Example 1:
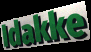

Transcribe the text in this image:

Idakke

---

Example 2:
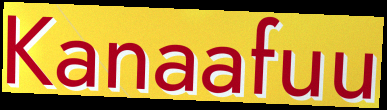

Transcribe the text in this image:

Kanaafuu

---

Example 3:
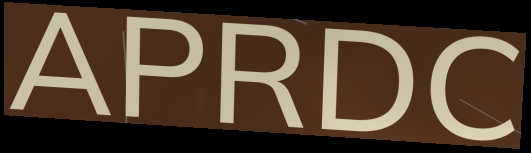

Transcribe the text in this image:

APRDC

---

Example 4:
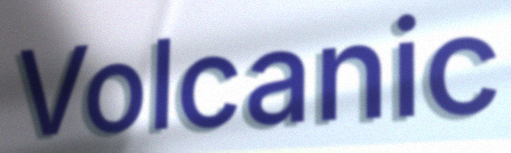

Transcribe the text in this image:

Volcanic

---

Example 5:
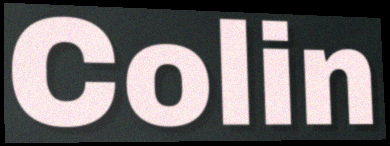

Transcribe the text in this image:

Colin